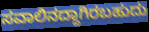
ಸವಾಲಿನದ್ದಾಗಿರಬಹುದು